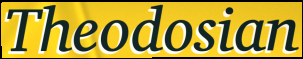
Theodosian